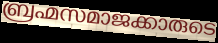
ബ്രഹ്മസമാജക്കാരുടെ